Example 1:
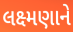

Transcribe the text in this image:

લક્ષ્મણાને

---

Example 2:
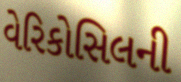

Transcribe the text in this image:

વેરિકોસિલની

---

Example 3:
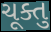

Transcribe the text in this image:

ચૂક્તુ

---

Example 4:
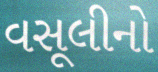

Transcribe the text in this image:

વસૂલીનો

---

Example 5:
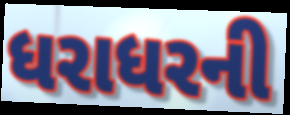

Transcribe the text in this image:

ધરાધરની